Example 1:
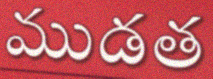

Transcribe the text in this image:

ముడత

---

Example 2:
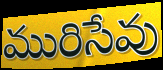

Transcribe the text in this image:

మురిసేవు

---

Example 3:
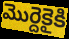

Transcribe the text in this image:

మొర్దెకైకి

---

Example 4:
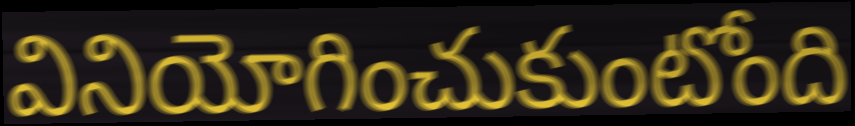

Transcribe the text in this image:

వినియోగించుకుంటోంది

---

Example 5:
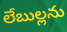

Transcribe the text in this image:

లేబుల్లను